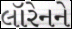
લૉરેનને